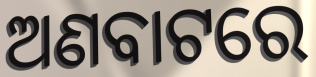
ଅଣବାଟରେ